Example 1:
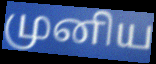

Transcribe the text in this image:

முனிய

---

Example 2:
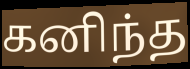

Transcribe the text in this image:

கனிந்த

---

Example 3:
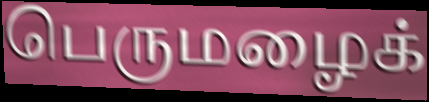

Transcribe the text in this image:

பெருமழைக்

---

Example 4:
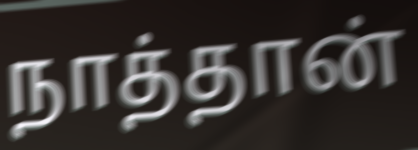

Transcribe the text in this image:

நாத்தான்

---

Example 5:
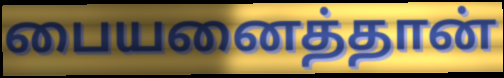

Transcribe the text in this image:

பையனைத்தான்